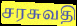
சரசுவதி